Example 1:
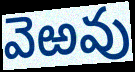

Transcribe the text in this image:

వెఱవు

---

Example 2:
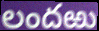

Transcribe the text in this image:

లందఱు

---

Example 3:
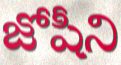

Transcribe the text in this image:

జోషీని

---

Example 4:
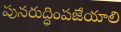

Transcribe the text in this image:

పునరుద్ధింపజేయాలి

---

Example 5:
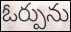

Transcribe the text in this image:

ఓర్పును